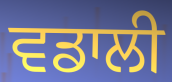
ਵਡਾਲੀ